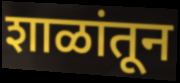
शाळांतून